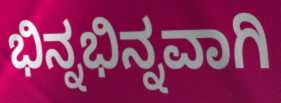
ಭಿನ್ನಭಿನ್ನವಾಗಿ